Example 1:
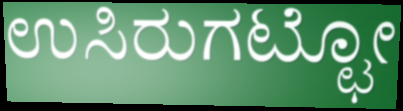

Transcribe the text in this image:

ಉಸಿರುಗಟ್ಟೋ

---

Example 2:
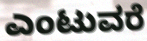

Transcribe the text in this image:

ಎಂಟುವರೆ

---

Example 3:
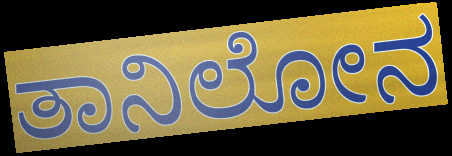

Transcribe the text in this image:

ತಾನಿಲೋನ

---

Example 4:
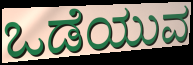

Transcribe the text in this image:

ಒಡೆಯುವ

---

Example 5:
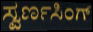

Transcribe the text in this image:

ಸ್ವರ್ಣಸಿಂಗ್